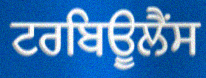
ਟਰਬਿਊਲੈਂਸ